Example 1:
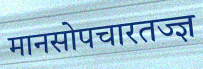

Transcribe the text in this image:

मानसोपचारतज्ज्ञ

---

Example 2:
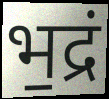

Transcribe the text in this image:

भ॒द्रं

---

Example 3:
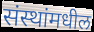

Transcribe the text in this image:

संस्थांमधील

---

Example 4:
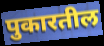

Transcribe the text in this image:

पुकारतील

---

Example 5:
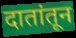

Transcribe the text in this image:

दातांतून